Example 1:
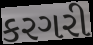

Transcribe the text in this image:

કરગરી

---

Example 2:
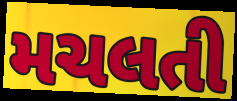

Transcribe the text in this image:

મચલતી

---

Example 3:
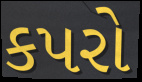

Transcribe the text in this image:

કપરો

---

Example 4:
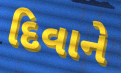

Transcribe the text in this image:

દિવાને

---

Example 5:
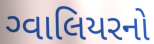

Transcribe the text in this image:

ગ્વાલિયરનો